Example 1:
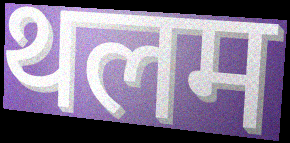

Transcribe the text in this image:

थलम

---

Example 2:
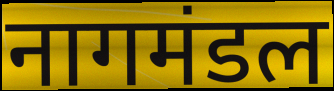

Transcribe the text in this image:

नागमंडल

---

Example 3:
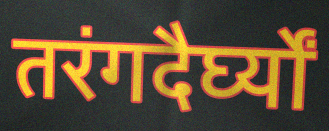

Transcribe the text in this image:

तरंगदैर्घ्यों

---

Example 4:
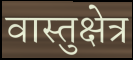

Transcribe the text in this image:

वास्तुक्षेत्र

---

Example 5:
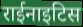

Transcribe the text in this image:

राईनाइटिस